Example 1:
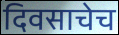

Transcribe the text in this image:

दिवसाचेच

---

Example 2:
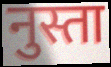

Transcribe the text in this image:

नुस्ता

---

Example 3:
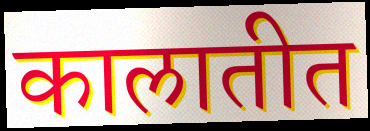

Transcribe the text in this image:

कालातीत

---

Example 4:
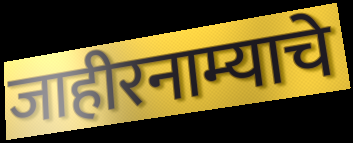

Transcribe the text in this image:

जाहीरनाम्याचे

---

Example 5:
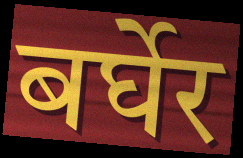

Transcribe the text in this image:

बर्घेर